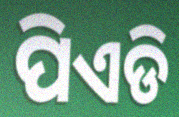
ପିଏଡି